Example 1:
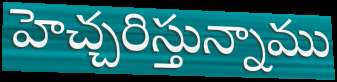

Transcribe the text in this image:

హెచ్చరిస్తున్నాము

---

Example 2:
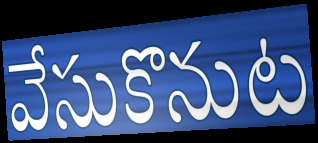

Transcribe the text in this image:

వేసుకొనుట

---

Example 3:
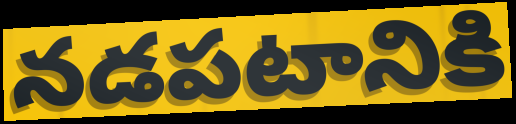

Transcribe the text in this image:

నడపటానికి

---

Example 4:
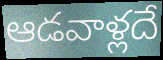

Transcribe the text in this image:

ఆడవాళ్లదే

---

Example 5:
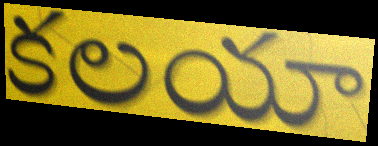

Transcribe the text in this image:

కలయా